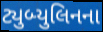
ટ્યુબ્યુલિનના